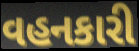
વહનકારી